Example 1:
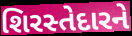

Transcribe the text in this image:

શિરસ્તેદારને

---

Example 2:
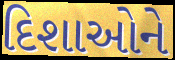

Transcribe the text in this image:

દિશાઓને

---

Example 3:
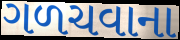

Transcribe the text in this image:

ગળચવાના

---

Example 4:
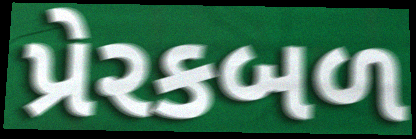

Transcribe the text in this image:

પ્રેરકબળ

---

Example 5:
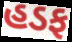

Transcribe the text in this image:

હડફ